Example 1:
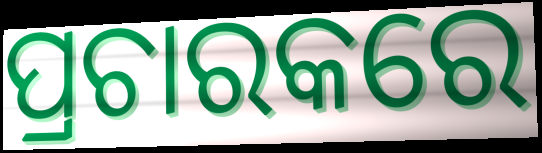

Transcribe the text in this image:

ପ୍ରଚାରକରେ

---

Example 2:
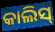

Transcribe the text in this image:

କାଲିସ୍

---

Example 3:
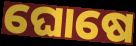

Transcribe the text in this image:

ଘୋଷେ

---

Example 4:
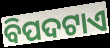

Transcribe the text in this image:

ବିପଦଟାଏ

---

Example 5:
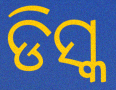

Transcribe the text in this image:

ଡିସ୍କ